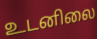
உடனிலை